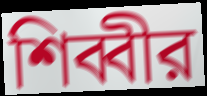
শিব্বীর